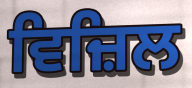
ਵਿਜ਼ਿਲ